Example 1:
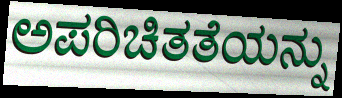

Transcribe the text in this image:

ಅಪರಿಚಿತತೆಯನ್ನು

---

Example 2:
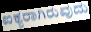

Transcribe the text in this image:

ಐಕ್ಯರಾಗಿರುವುದು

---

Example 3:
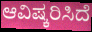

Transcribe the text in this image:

ಆವಿಷ್ಕರಿಸಿದೆ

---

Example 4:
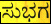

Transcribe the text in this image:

ಸುಭಗ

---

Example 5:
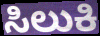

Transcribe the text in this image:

ಸಿಲುಕಿ